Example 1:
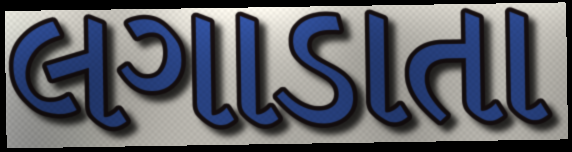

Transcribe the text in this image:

લગાડાતા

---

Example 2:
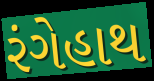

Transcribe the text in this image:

રંગેહાથ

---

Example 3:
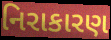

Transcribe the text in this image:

નિરાકારણ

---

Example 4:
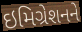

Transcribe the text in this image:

ઇમિગ્રેશનને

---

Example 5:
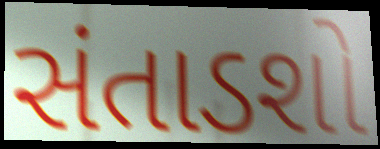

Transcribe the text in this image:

સંતાડશો